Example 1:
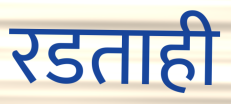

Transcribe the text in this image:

रडताही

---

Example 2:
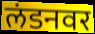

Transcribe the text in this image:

लंडनवर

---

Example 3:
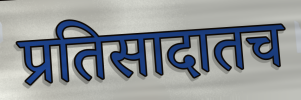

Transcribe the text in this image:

प्रतिसादातच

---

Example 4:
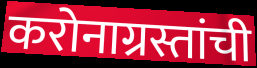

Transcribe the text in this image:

करोनाग्रस्तांची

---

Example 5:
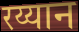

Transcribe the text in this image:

रय्यान